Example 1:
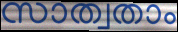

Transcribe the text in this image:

സാത്വതാം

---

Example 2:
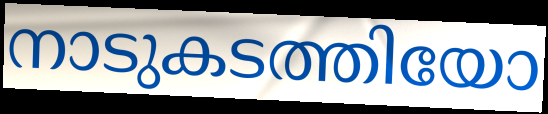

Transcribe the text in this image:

നാടുകടത്തിയോ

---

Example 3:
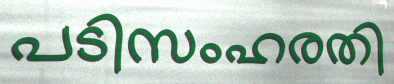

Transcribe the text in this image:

പടിസംഹരതി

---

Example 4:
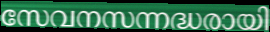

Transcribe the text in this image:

സേവനസന്നദ്ധരായി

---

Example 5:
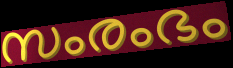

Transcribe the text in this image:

സംരംഭം